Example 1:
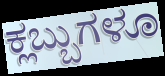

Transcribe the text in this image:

ಕ್ಲಬ್ಬುಗಳೂ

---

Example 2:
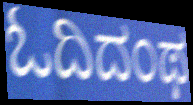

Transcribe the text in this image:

ಓದಿದಂಥ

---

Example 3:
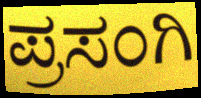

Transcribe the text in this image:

ಪ್ರಸಂಗಿ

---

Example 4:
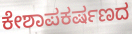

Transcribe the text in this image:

ಕೇಶಾಪಕರ್ಷಣದ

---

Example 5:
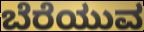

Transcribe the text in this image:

ಬೆರೆಯುವ